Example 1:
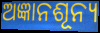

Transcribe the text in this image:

ଅଜ୍ଞାନଶୂନ୍ୟ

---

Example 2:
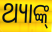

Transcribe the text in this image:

ଥ୍ୟାଙ୍କ୍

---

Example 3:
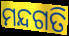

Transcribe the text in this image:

ମନ୍ଦଗତି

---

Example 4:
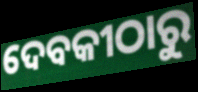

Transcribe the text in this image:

ଦେବକୀଠାରୁ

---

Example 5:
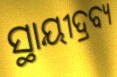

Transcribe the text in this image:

ସ୍ଥାୟୀଦ୍ରବ୍ୟ